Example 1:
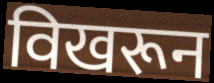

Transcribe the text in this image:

विखरून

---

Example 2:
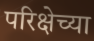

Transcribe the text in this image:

परिक्षेच्या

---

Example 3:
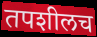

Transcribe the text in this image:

तपशीलच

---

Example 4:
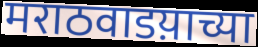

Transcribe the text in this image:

मराठवाडय़ाच्या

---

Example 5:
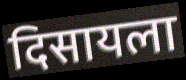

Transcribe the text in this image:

दिसायला